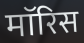
मॉरिस